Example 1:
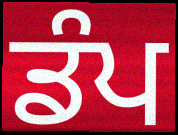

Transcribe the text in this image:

ਡੰਪ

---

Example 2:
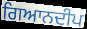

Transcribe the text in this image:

ਗਿਆਨਦੀਪ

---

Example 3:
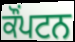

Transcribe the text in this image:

ਕੌਂਪਟਨ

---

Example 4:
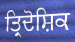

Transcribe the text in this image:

ਤ੍ਰਿਦੋਸ਼ਿਕ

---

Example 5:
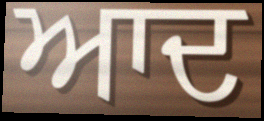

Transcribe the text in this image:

ਆਦ